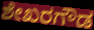
ಶೇಖರಗೌಡ